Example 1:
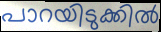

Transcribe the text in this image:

പാറയിടുക്കിൽ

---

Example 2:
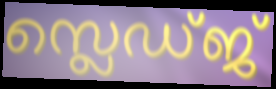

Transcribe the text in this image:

സ്ലെഡ്ജ്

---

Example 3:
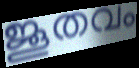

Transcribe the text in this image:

ജൂതവം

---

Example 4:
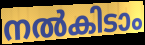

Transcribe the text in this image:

നൽകിടാം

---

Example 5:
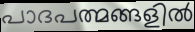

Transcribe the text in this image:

പാദപത്മങ്ങളിൽ